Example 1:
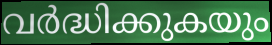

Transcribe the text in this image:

വർദ്ധിക്കുകയും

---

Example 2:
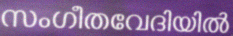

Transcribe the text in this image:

സംഗീതവേദിയിൽ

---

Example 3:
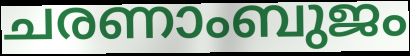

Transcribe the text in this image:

ചരണാംബുജം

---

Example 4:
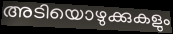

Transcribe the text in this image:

അടിയൊഴുക്കുകളും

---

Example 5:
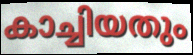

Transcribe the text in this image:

കാച്ചിയതും